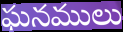
ఘనములు